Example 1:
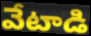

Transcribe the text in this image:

వేటాడి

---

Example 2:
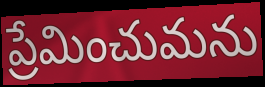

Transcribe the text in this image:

ప్రేమించుమను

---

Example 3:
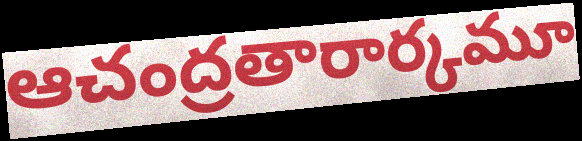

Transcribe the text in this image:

ఆచంద్రతారార్కమూ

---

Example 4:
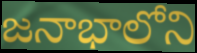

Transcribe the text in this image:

జనాభాలోని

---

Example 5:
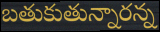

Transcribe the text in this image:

బతుకుతున్నారన్న